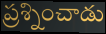
ప్రశ్నించాడు